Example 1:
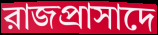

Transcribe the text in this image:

রাজপ্রাসাদে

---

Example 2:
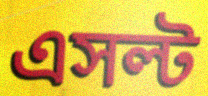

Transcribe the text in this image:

এসল্ট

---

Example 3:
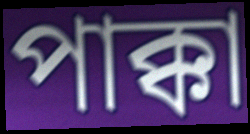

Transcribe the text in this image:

পাক্কা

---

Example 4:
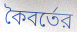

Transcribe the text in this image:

কৈবর্তের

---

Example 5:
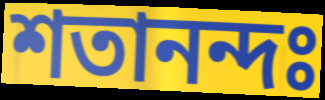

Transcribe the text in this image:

শতানন্দঃ